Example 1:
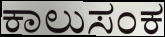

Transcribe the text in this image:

ಕಾಲುಸಂಕ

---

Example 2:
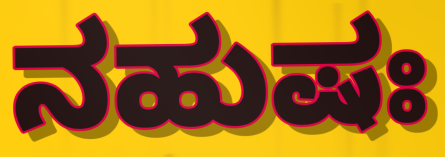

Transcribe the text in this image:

ನಹುಷಃ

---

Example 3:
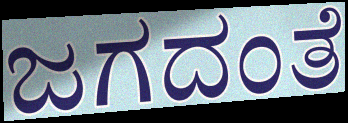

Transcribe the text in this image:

ಜಗದಂತೆ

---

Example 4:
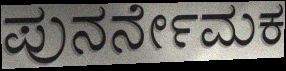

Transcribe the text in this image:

ಪುನರ್ನೇಮಕ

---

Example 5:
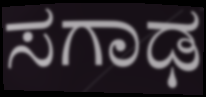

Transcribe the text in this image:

ಸಗಾಢ